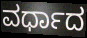
ವರ್ಧಾದ